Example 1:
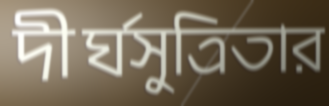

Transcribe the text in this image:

দীর্ঘসুত্রিতার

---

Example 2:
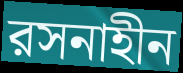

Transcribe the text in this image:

রসনাহীন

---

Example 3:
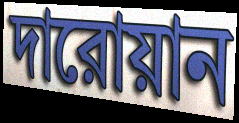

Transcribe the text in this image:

দারোয়ান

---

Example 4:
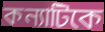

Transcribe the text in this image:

কন্যাটিকে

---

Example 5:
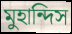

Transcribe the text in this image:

মুহান্দিস